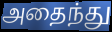
அதைந்து